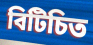
বিটিচিত